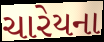
ચારેયના